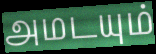
அமடயும்